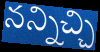
నన్నిచ్చి